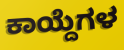
ಕಾಯ್ದೆಗಳ